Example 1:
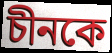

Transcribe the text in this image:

চীনকে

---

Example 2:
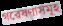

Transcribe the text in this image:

গৱেষণাসমূহ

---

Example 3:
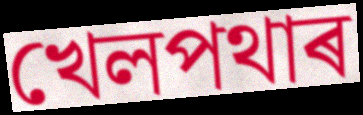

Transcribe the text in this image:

খেলপথাৰ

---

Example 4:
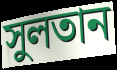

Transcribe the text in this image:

সুলতান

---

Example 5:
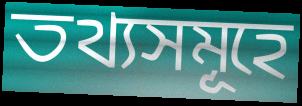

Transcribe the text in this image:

তথ্যসমূহে